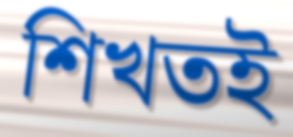
শিখতই